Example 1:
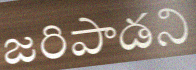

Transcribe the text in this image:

జరిపాడని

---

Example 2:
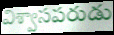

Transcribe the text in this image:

విశ్వాసపరుడు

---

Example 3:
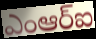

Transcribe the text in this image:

ఎంఆర్ఐ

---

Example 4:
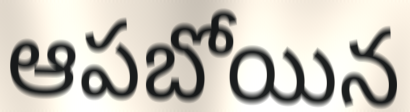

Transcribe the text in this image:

ఆపబోయిన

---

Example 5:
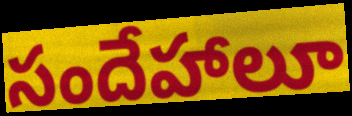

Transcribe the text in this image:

సందేహాలూ